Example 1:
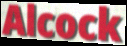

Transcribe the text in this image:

Alcock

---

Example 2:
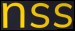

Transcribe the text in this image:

nss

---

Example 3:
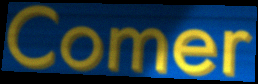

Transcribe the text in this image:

Comer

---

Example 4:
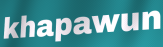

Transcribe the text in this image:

khapawun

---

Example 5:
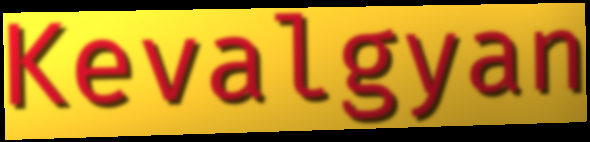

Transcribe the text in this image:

Kevalgyan